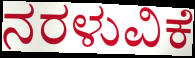
ನರಳುವಿಕೆ